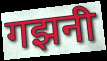
गझनी